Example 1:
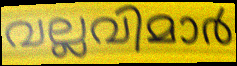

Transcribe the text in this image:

വല്ലവിമാർ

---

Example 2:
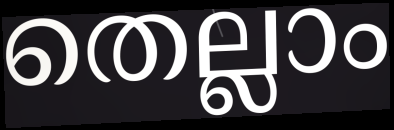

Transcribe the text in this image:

തെല്ലാം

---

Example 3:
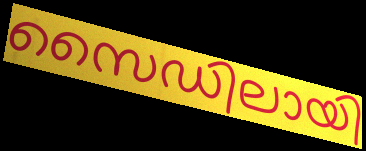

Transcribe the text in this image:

സൈഡിലായി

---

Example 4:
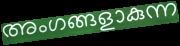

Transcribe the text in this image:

അംഗങ്ങളാകുന്ന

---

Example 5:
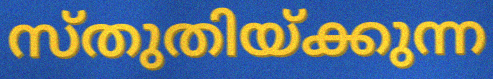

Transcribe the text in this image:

സ്തുതിയ്ക്കുന്ന